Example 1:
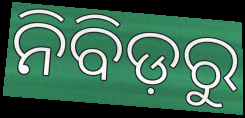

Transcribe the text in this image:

ନିବିଡ଼ରୁ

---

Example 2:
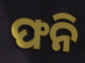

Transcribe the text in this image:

ଫନି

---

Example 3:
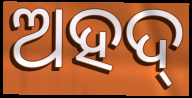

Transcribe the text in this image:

ଅହଦ୍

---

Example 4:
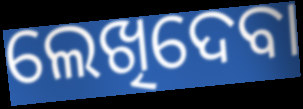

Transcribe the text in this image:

ଲେଖିଦେବା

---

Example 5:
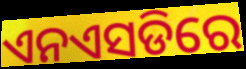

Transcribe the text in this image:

ଏନଏସଡିରେ